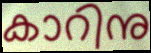
കാറിനു